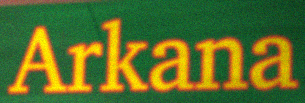
Arkana